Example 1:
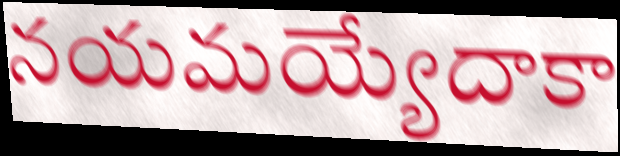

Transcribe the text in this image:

నయమయ్యేదాకా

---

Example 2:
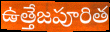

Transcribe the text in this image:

ఉత్తేజపూరిత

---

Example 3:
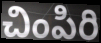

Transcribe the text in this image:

చింపిరి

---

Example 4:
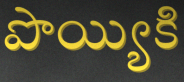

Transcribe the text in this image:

పొయ్యికి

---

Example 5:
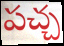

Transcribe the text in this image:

పచ్చ